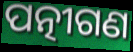
ପତ୍ନୀଗଣ